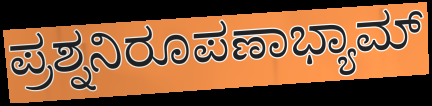
ಪ್ರಶ್ನನಿರೂಪಣಾಭ್ಯಾಮ್